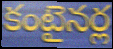
కంటైనర్ల